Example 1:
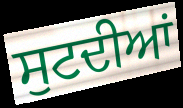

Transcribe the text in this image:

ਸੁਟਦੀਆਂ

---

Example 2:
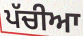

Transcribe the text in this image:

ਪੱਚੀਆ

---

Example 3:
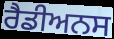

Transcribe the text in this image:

ਰੈਡੀਅਨਸ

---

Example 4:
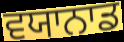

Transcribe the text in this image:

ਵਯਾਨਾਡ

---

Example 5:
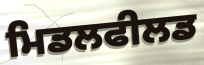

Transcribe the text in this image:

ਮਿਡਲਫੀਲਡ